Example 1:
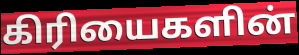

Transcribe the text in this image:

கிரியைகளின்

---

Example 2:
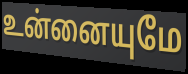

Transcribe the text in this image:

உன்னையுமே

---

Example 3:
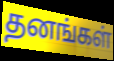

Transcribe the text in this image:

தனங்கள்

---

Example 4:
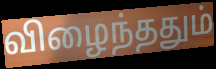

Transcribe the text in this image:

விழைந்ததும்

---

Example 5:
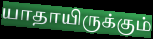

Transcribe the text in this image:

யாதாயிருக்கும்